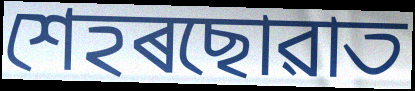
শেহৰছোৱাত